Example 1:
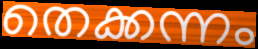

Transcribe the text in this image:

തെക്കന്നം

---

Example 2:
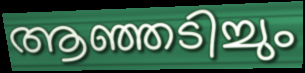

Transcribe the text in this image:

ആഞ്ഞടിച്ചും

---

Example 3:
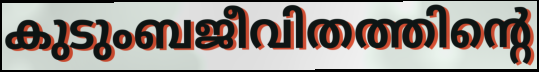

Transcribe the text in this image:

കുടുംബജീവിതത്തിന്റെ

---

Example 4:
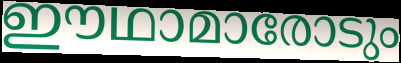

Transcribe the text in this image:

ഈഥാമാരോടും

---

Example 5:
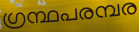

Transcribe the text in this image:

ഗ്രന്ഥപരമ്പര